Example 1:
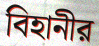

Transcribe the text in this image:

বিহানীর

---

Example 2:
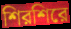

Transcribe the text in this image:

শিরশিরে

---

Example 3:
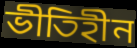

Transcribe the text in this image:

ভীতিহীন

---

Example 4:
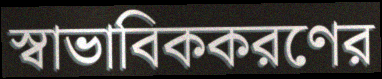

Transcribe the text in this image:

স্বাভাবিককরণের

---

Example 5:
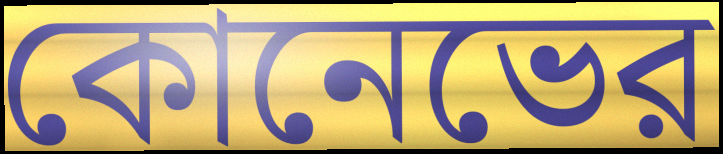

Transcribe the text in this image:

কোনেভের